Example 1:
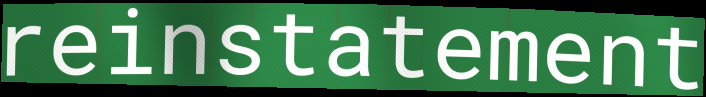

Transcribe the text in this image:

reinstatement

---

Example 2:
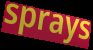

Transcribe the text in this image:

sprays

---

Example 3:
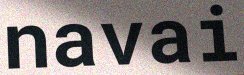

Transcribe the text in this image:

navai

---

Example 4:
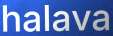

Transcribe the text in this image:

halava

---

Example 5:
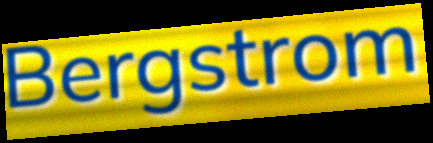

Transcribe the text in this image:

Bergstrom